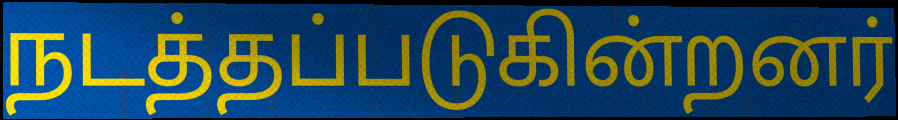
நடத்தப்படுகின்றனர்